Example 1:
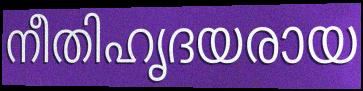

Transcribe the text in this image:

നീതിഹൃദയരായ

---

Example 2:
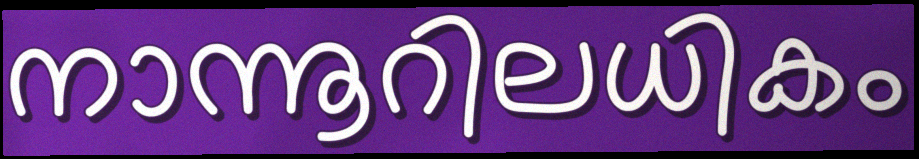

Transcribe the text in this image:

നാന്നൂറിലധികം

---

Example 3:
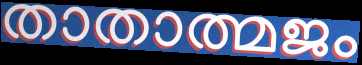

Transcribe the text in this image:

താതാത്മജം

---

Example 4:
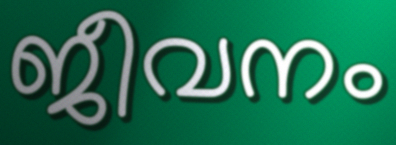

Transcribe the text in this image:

ജീവനം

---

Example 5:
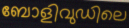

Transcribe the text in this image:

ബോളിവുഡിലെ